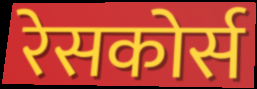
रेसकोर्स